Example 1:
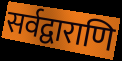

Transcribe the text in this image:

सर्वद्वाराणि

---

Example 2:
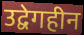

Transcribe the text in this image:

उद्वेगहीन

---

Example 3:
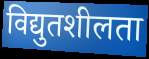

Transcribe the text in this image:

विद्युतशीलता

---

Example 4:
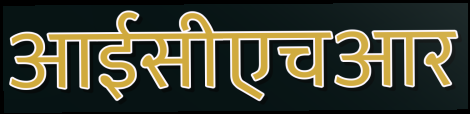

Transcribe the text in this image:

आईसीएचआर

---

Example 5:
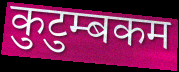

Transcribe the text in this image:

कुटुम्बकम